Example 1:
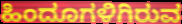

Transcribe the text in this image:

ಹಿಂದೂಗಳಿಗಿರುವ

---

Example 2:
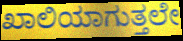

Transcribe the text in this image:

ಖಾಲಿಯಾಗುತ್ತಲೇ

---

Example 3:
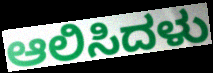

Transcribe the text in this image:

ಆಲಿಸಿದಳು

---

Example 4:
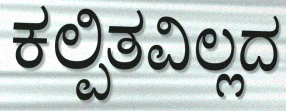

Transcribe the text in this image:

ಕಲ್ಪಿತವಿಲ್ಲದ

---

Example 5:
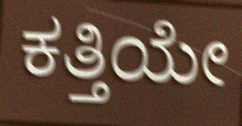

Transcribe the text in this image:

ಕತ್ತಿಯೇ